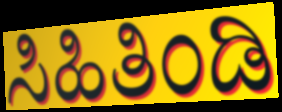
ಸಿಹಿತಿಂಡಿ